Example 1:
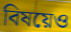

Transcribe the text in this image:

বিষয়েও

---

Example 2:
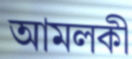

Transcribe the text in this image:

আমলকী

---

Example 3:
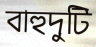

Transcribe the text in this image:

বাহুদুটি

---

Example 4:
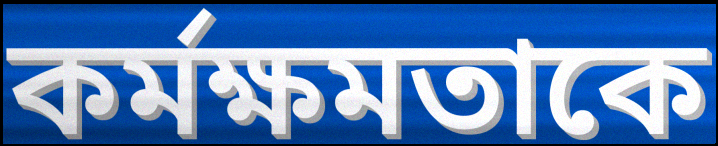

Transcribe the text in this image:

কর্মক্ষমতাকে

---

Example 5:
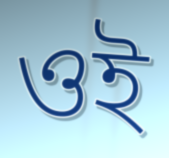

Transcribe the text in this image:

ওই